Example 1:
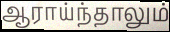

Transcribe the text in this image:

ஆராய்ந்தாலும்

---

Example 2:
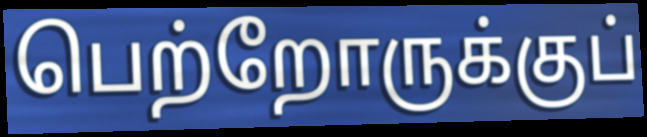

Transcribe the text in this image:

பெற்றோருக்குப்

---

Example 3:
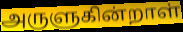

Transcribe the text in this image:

அருளுகின்றாள்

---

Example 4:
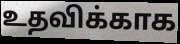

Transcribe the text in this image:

உதவிக்காக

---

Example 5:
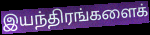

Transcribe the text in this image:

இயந்திரங்களைக்